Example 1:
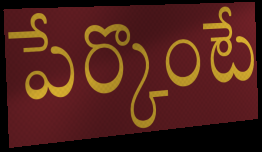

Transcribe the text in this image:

పేర్కొంటే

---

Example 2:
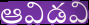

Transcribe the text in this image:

ఆవిడవి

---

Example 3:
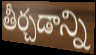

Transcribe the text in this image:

తీర్చడాన్ని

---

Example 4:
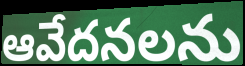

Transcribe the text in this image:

ఆవేదనలను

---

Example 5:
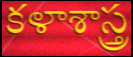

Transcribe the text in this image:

కళాశాస్త్ర